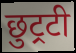
छुट्रटी